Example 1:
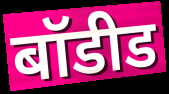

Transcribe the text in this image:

बॉडीड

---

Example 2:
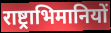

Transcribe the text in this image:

राष्ट्राभिमानियों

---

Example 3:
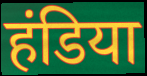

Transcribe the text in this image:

हंडिया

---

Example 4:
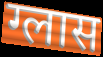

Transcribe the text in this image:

ग्लास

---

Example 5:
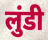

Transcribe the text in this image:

लुंडी